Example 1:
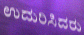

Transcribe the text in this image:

ಉದುರಿಸಿದರು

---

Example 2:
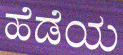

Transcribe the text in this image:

ಹೆಡೆಯ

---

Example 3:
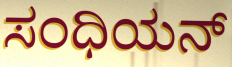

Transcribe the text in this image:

ಸಂಧಿಯನ್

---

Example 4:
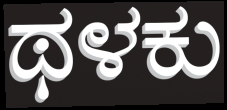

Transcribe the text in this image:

ಥಳಕು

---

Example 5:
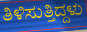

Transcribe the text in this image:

ತಿಳಿಸುತ್ತಿದ್ದಳು